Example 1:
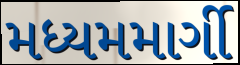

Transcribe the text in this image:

મધ્યમમાર્ગી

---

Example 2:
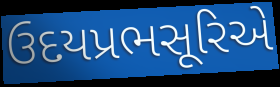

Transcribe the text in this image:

ઉદયપ્રભસૂરિએ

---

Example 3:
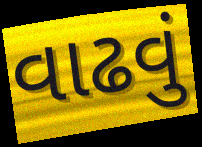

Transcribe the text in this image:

વાઢવું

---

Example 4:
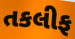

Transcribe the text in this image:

તકલીફ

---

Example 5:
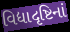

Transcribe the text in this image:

વિદ્યાદૃષ્ટિનાં